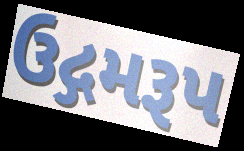
ઉદ્ગમરૂપ